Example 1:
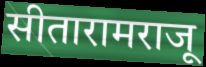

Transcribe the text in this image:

सीतारामराजू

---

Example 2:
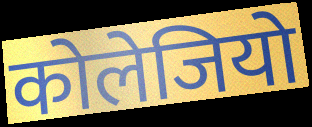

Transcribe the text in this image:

कोलेजियो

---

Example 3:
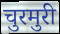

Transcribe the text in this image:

चुरमुरी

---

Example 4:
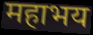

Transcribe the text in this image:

महाभय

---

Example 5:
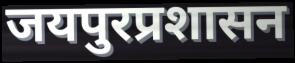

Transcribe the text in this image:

जयपुरप्रशासन